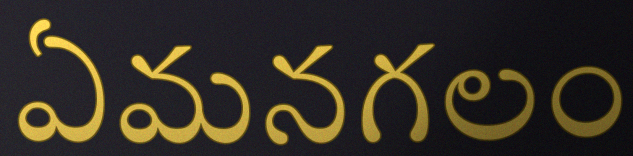
ఏమనగలం